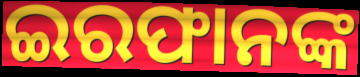
ଇରଫାନଙ୍କ